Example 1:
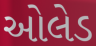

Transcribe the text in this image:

ઓલેડ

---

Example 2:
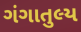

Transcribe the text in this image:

ગંગાતુલ્ય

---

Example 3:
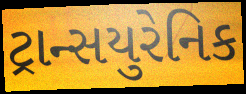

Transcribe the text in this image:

ટ્રાન્સયુરેનિક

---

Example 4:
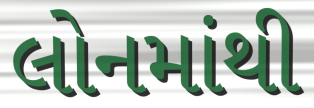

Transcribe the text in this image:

લોનમાંથી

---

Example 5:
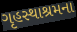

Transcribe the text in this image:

ગૃહસ્થાશ્રમના